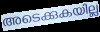
അടെക്കുകയില്ല